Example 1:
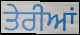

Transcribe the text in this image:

ਤੇਰੀਆਂ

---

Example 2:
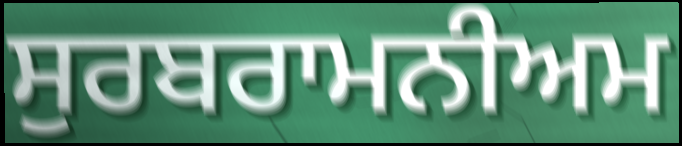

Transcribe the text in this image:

ਸੁਰਬਰਾਮਨੀਅਮ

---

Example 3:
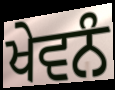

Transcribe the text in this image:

ਖੇਵਨੰ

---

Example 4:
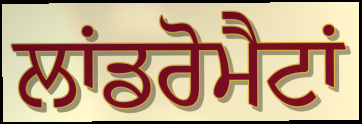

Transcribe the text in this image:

ਲਾਂਡਰੋਮੈਟਾਂ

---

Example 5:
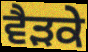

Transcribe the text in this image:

ਵੈੜਕੇ